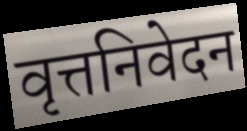
वृत्तनिवेदन